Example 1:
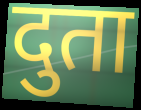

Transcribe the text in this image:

दुता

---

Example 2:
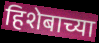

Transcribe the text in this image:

हिशेबाच्या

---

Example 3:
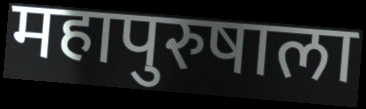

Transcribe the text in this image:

महापुरुषाला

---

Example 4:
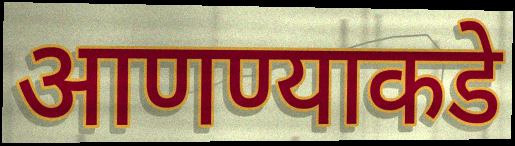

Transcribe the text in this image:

आणण्याकडे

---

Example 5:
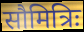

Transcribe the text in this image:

सौमित्रिः